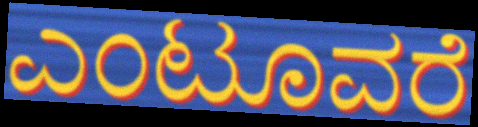
ಎಂಟೂವರೆ